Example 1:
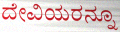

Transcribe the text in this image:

ದೇವಿಯರನ್ನೂ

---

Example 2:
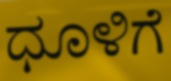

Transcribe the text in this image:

ಧೂಳಿಗೆ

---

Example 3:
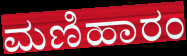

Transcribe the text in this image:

ಮಣಿಹಾರಂ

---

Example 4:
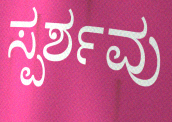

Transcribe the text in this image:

ಸ್ಪರ್ಶವು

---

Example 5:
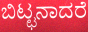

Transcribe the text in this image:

ಬಿಟ್ಟನಾದರೆ